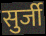
सुर्जी